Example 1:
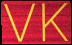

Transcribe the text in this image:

VK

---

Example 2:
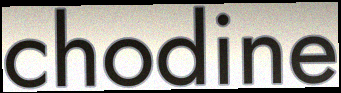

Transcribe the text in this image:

chodine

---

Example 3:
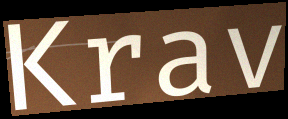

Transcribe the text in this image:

Krav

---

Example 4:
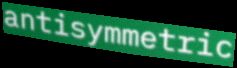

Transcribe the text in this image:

antisymmetric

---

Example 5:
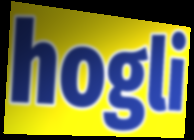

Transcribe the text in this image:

hogli